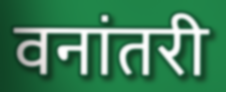
वनांतरी